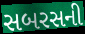
સબરસની